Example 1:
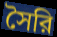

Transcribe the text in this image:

সৈরি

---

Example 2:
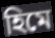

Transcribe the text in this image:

হিমে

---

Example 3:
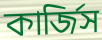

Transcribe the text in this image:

কার্জিস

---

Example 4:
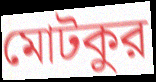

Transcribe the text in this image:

মোটকুর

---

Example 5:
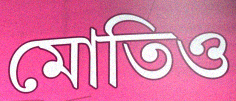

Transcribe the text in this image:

মোতিও